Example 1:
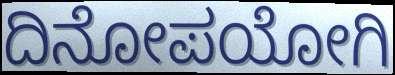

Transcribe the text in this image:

ದಿನೋಪಯೋಗಿ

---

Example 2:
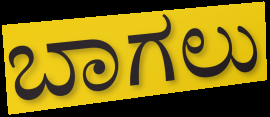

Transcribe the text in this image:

ಬಾಗಲು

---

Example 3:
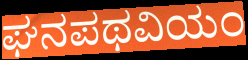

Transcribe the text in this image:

ಘನಪಥವಿಯಂ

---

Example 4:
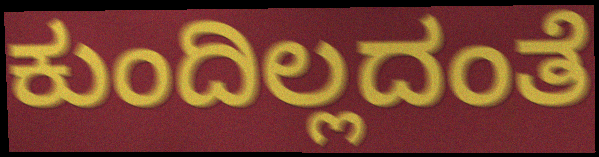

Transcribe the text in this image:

ಕುಂದಿಲ್ಲದಂತೆ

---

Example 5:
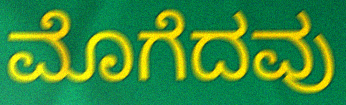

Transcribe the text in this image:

ಮೊಗೆದವು